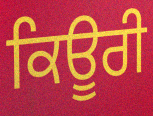
ਕਿਊਰੀ